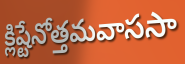
క్లిష్టేనోత్తమవాససా